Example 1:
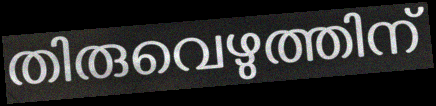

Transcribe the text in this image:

തിരുവെഴുത്തിന്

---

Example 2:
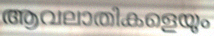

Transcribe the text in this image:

ആവലാതികളെയും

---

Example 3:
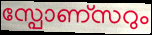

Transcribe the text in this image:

സ്പോണ്സറും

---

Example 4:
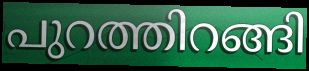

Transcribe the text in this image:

പുറത്തിറങ്ങി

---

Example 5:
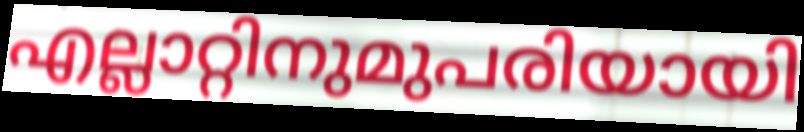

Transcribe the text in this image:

എല്ലാറ്റിനുമുപരിയായി